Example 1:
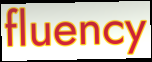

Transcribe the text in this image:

fluency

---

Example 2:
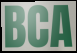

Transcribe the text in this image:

BCA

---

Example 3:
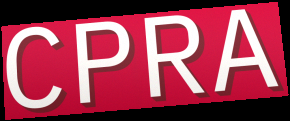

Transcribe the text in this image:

CPRA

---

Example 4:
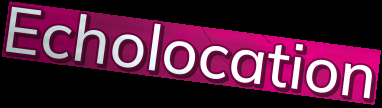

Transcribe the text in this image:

Echolocation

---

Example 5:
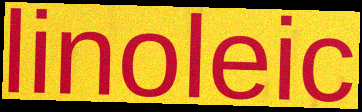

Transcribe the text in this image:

linoleic